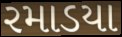
રમાડયા